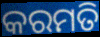
କରମତି